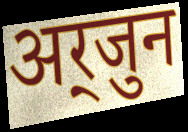
अर्जुन